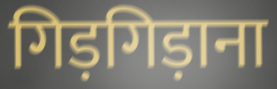
गिड़गिड़ाना